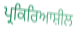
ਪ੍ਰਕਿਰਿਆਸ਼ੀਲ